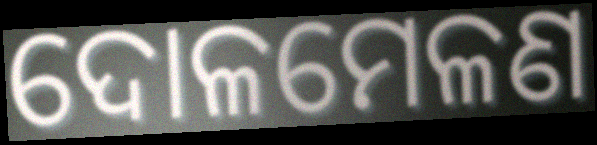
ଦୋଳମେଳଣ